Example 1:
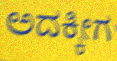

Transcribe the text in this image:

ಅದಕ್ಕೀಗ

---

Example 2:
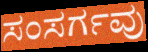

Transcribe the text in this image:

ಸಂಸರ್ಗವು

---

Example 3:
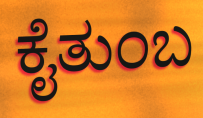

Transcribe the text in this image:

ಕೈತುಂಬ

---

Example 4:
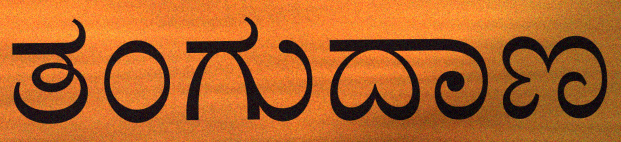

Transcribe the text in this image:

ತಂಗುದಾಣ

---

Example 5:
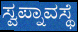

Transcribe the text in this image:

ಸ್ವಪ್ನಾವಸ್ಥೆ